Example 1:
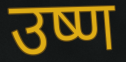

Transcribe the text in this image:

उष्ण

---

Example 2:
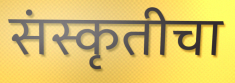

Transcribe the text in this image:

संस्कृतीचा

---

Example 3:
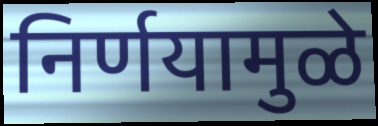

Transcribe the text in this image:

निर्णयामुळे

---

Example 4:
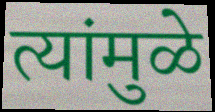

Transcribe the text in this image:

त्यांमुळे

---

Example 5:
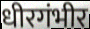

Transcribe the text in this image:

धीरगंभीर